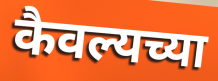
कैवल्यच्या